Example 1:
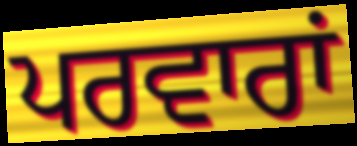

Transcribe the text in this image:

ਪਰਵਾਰਾਂ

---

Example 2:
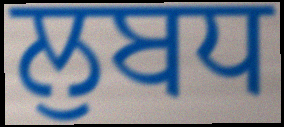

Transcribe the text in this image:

ਲੁਬਧ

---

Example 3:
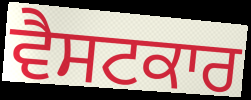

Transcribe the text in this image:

ਵੈਸਟਕਾਰ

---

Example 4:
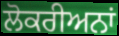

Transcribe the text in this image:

ਲੋਕਰੀਅਨਾਂ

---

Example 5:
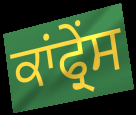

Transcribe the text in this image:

ਕਾਂਫ੍ਰੇਂਸ